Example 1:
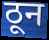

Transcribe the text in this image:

ठून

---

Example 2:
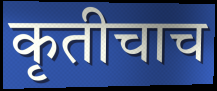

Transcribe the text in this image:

कृतीचाच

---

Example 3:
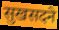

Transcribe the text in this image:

सुखसदने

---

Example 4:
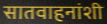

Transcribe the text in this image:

सातवाहनांशी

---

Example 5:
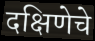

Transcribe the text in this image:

दक्षिणेचे